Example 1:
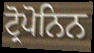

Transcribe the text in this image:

ਟ੍ਰੋਪੋਨਿਨ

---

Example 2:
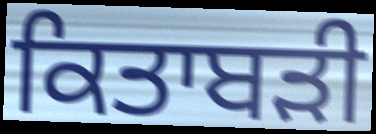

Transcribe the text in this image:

ਕਿਤਾਬੜੀ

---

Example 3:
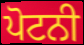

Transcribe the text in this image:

ਪੋਟਨੀ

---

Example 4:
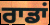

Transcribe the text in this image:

ਰਾਡਾਂ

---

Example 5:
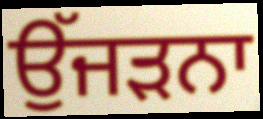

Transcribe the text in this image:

ਉੱਜੜਨਾ